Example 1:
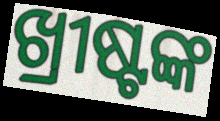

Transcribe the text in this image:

ଖ୍ରୀଷ୍ଟଙ୍କ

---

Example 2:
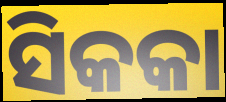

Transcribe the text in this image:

ସିକକା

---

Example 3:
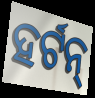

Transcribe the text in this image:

ହର୍ଟନ୍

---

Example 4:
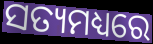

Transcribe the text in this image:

ସତ୍ୟମଧ୍ୟରେ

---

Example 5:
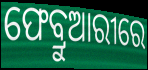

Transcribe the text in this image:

ଫେବ୍ରୁଆରୀରେ